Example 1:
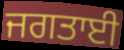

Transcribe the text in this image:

ਜਗਤਾਈ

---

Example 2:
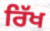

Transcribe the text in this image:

ਰਿੱਖ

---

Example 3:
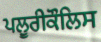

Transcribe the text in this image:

ਪਲੂਰੀਕੌਲਿਸ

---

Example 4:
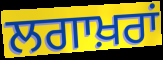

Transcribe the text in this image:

ਲਗਾਖ਼ਰਾਂ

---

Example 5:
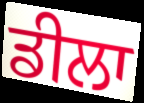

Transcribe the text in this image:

ਡੀਲਾ